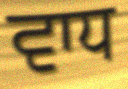
ਵਾਧ